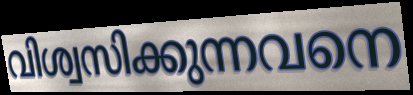
വിശ്വസിക്കുന്നവനെ